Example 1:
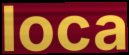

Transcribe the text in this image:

loca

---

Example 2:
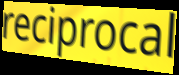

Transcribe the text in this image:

reciprocal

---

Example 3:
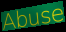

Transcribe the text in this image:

Abuse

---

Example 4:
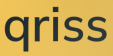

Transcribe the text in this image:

qriss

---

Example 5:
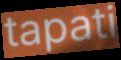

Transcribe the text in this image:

tapati